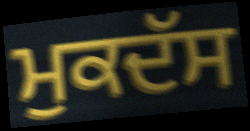
ਮੁਕਦੱਸ